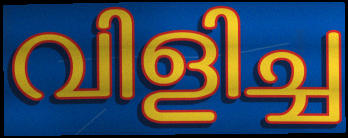
വിളിച്ച